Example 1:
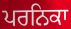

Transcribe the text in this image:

ਪਰਨਿਕਾ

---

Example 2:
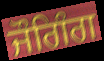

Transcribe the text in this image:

ਜੌਗਿੰਗ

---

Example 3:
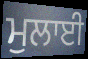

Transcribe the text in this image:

ਮੁਲਾਈ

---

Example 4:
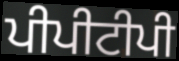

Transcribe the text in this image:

ਪੀਪੀਟੀਪੀ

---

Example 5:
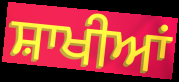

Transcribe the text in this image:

ਸ਼ਾਖੀਆਂ